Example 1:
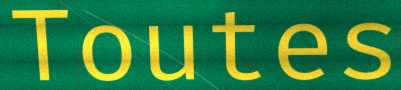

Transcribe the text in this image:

Toutes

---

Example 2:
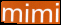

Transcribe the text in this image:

mimi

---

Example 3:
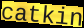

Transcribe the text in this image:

catkin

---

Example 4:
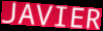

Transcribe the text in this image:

JAVIER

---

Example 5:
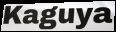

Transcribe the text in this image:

Kaguya